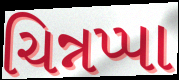
ચિન્નપ્પા